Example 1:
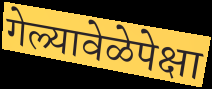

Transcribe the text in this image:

गेल्यावेळेपेक्षा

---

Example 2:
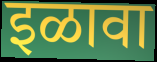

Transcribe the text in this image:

इळावा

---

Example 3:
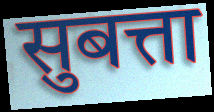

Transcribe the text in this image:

सुबत्ता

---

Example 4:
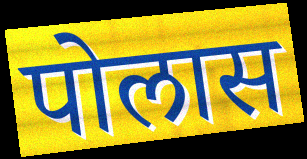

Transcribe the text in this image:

पोलास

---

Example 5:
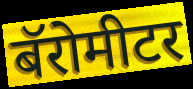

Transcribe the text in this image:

बॅरोमीटर